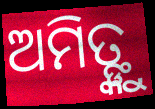
ଅମିତ୍ଙ୍କୁ